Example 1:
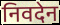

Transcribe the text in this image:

निवदेन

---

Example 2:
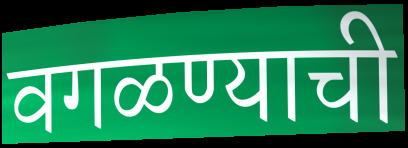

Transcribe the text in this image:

वगळण्याची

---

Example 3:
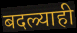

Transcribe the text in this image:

बदल्याही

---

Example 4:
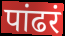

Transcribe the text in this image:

पांढरं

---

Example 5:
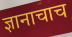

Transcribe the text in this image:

ज्ञानाचाच